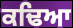
ਕਢਿਆ